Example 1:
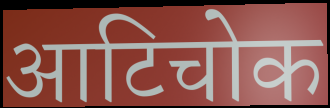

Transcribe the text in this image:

आटिचोक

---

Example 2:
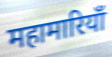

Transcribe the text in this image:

महामारियाँ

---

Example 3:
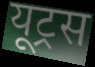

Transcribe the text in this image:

यूट्रस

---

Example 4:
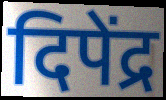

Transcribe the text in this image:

दिपेंद्र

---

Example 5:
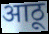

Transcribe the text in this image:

आठू